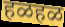
हळहळ